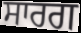
ਸਾਰਗ